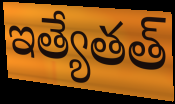
ఇత్యేతత్